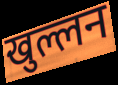
खुल्लन